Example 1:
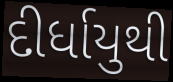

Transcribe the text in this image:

દીર્ધાયુથી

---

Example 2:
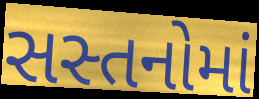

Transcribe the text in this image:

સસ્તનોમાં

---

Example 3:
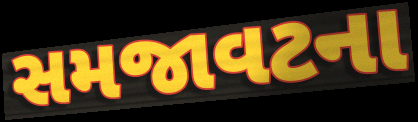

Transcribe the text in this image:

સમજાવટના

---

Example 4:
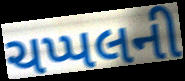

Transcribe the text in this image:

ચપ્પલની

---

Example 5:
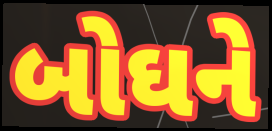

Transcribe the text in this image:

બોઘને